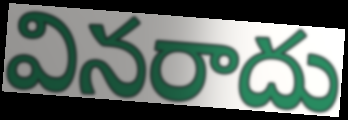
వినరాదు